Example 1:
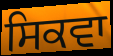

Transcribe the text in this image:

ਸਿਕਵਾ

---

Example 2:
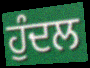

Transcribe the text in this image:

ਹੁੰਦਲ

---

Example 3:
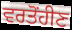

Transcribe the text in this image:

ਵਰਤੋਂਹੀਣ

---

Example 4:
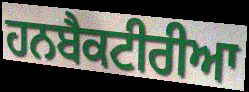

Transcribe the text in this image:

ਹਨਬੈਕਟੀਰੀਆ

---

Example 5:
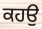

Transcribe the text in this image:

ਕਹਉ